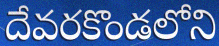
దేవరకొండలోని